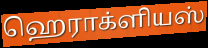
ஹெராக்ளியஸ்